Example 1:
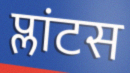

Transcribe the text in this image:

प्लांटस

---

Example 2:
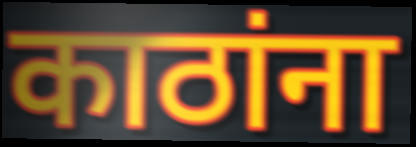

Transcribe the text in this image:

काठांना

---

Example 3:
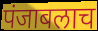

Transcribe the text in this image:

पंजाबलाच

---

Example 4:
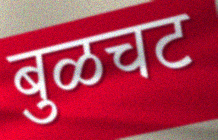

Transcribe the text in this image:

बुळचट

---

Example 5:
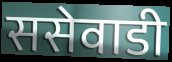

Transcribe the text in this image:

ससेवाडी